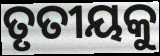
ତୃତୀୟକୁ